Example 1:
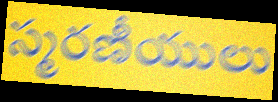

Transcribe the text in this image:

స్మరణీయులు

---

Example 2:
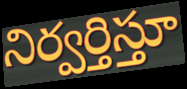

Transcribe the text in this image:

నిర్వర్తిస్తూ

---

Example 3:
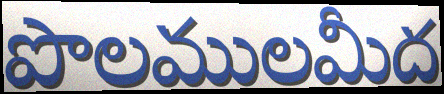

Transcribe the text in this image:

పొలములమీద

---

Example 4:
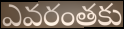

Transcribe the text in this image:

ఎవరంతకు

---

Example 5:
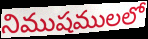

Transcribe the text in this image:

నిముషములలో